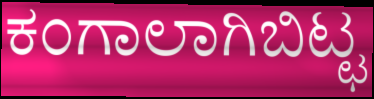
ಕಂಗಾಲಾಗಿಬಿಟ್ಟ